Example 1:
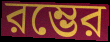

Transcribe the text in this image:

রম্ভের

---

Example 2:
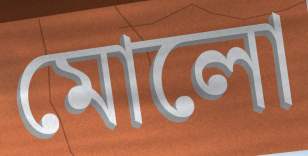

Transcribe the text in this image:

মোলো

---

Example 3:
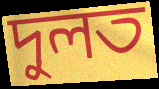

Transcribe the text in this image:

দুলত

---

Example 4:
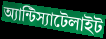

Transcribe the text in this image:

অ্যান্টিস্যাটেলাইট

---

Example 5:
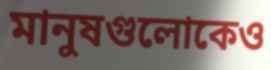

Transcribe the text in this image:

মানুষগুলোকেও